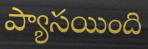
ప్యాసయింది